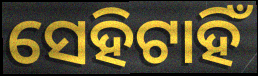
ସେହିଟାହିଁ